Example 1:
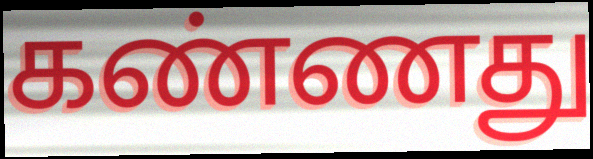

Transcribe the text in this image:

கண்ணது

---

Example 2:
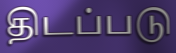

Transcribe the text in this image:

திடப்படு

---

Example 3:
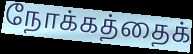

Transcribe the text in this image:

நோக்கத்தைக்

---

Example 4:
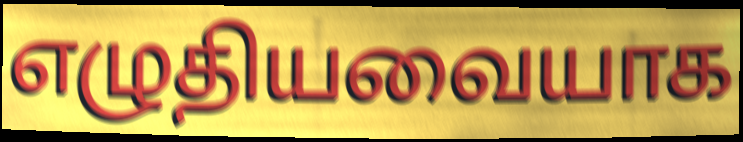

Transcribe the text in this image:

எழுதியவையாக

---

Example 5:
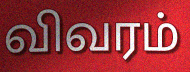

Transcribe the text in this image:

விவரம்